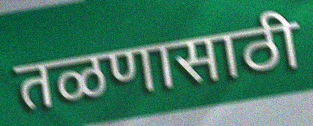
तळणासाठी